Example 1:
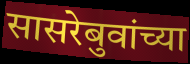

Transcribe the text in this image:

सासरेबुवांच्या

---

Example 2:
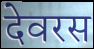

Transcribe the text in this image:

देवरस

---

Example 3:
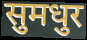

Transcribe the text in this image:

सुमधुर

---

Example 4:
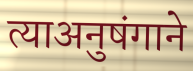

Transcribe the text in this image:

त्याअनुषंगाने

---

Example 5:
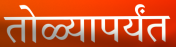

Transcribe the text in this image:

तोळ्यापर्यंत